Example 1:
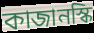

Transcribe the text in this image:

কাজানস্কি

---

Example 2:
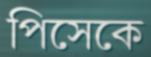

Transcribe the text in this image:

পিসেকে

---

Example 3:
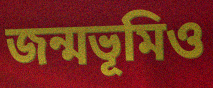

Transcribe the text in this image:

জন্মভূমিও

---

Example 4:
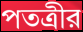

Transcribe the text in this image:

পতত্রীর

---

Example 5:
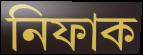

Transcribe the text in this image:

নিফাক